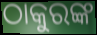
ଠାକୁରଙ୍କ